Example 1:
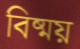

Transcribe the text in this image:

বিষ্ময়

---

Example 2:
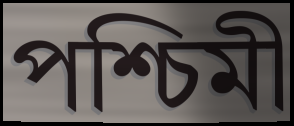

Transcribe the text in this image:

পশ্চিমী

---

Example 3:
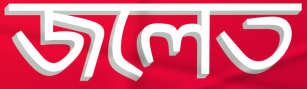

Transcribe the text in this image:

জলেত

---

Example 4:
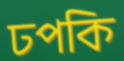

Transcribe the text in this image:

ঢপকি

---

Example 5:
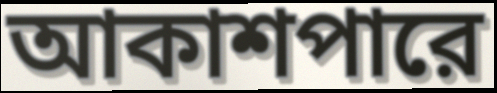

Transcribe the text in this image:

আকাশপারে